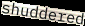
shuddered